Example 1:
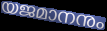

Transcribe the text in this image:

യജമാനനും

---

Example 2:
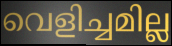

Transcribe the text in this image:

വെളിച്ചമില്ല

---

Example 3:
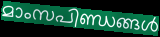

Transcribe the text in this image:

മാംസപിണ്ഡങ്ങൾ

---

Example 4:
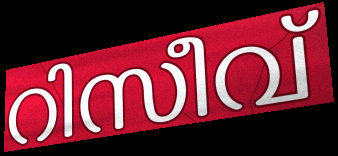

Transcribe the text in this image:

റിസീവ്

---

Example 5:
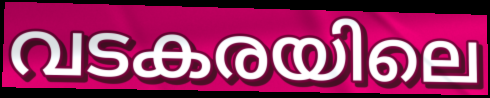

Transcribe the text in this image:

വടകരയിലെ